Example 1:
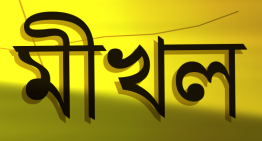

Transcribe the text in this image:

মীখল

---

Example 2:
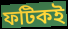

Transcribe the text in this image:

ফটিকই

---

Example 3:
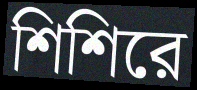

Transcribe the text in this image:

শিশিরে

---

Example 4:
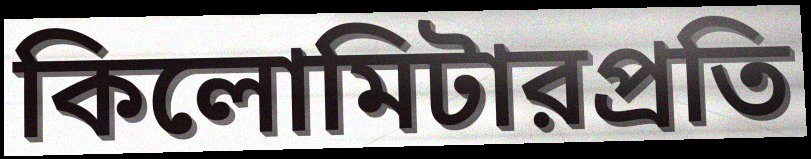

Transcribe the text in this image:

কিলোমিটারপ্রতি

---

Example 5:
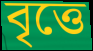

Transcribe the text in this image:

বৃত্তে